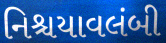
નિશ્ચયાવલંબી